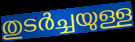
തുടർച്ചയുള്ള